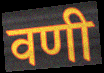
वणी